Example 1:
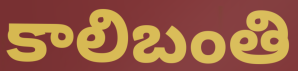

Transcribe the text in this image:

కాలిబంతి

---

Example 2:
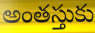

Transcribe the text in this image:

అంతస్తుకు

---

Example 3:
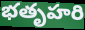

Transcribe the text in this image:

భతృహరి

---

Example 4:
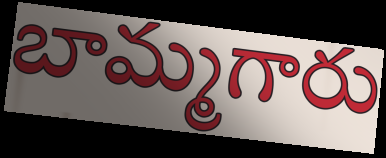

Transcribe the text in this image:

బామ్మగారు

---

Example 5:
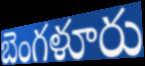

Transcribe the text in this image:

బెంగళూరు